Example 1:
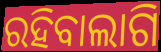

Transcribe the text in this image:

ରହିବାଲାଗି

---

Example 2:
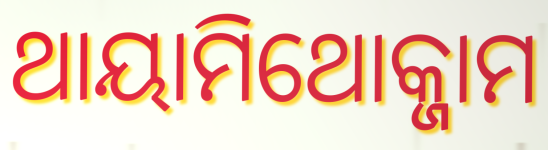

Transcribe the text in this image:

ଥାୟାମିଥୋକ୍ଜାମ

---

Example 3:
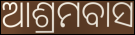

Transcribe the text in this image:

ଆଶ୍ରମବାସ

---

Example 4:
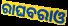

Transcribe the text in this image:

ରାଘବରାଓ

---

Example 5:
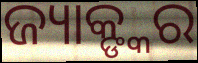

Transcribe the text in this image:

ଜ୍ୟାକ୍ଙ୍କର